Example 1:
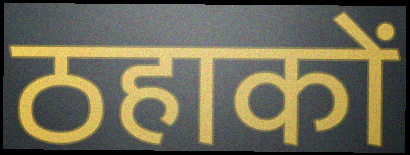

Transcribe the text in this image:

ठहाकों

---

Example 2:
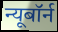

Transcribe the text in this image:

न्यूबॉर्न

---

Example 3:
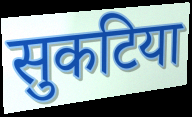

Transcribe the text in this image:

सुकटिया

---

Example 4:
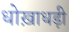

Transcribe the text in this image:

धोख़ाधड़ी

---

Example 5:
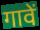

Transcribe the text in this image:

गावें